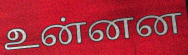
உன்னன